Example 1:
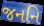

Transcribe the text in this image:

જનનિ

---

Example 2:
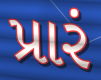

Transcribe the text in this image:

પ્રારં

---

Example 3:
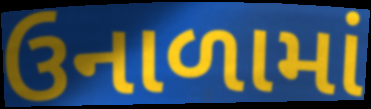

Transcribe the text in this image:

ઉનાળામાં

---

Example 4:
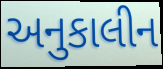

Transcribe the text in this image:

અનુકાલીન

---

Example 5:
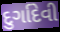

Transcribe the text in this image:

દુર્ગાદેવી